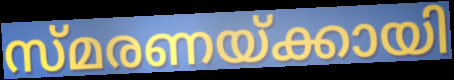
സ്മരണയ്ക്കായി